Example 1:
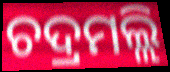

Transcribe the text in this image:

ଚଦ୍ରମଲ୍ଲି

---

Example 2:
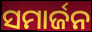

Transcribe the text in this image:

ସମାର୍ଜନ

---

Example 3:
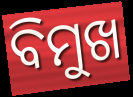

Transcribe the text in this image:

ବିମୁଖ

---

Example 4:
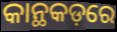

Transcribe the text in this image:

କାନ୍ଥକଡ଼ରେ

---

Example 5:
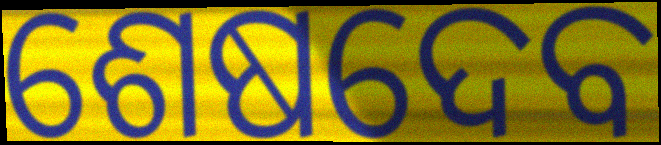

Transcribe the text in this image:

ଶେଷଦେବ